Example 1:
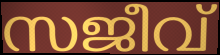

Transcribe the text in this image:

സജീവ്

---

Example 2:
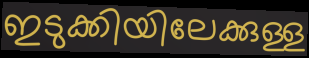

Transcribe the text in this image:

ഇടുക്കിയിലേക്കുള്ള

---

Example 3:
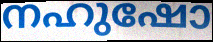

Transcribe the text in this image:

നഹുഷോ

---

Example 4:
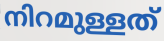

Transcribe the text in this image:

നിറമുള്ളത്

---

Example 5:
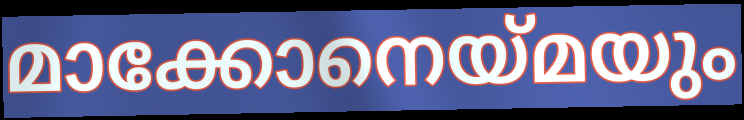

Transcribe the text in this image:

മാക്കോനെയ്മയും